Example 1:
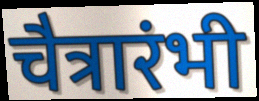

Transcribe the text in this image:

चैत्रारंभी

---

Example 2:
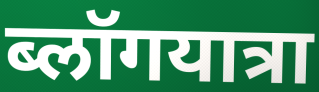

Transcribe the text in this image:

ब्लॉगयात्रा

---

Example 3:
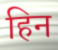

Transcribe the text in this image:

हिन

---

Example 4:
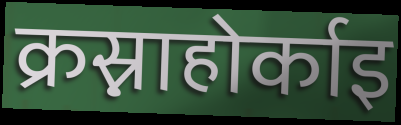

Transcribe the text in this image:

क्रस्नाहोर्काइ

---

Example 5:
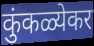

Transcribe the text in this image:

कुंकळ्येकर